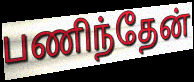
பணிந்தேன்